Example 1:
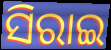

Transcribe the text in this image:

ସିରାଇ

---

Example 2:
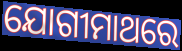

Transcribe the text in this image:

ଯୋଗୀମାଥରେ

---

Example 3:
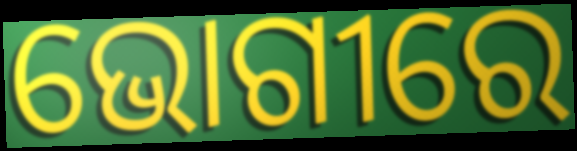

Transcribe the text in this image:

ଭୋଗୀରେ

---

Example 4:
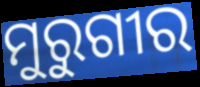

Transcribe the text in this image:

ମୁରୁଗୀର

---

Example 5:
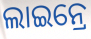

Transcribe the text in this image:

ଲାଇନ୍ରେ